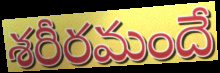
శరీరమందే